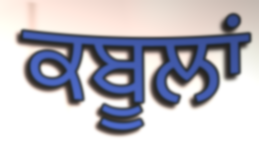
ਕਬੂਲਾਂ